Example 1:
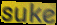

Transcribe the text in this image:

suke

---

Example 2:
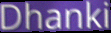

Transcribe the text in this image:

Dhanki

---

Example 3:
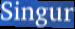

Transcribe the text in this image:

Singur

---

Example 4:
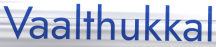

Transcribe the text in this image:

Vaalthukkal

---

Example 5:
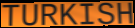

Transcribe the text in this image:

TURKISH